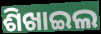
ଶିଖାଇଲ